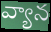
వ్యాన